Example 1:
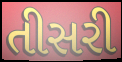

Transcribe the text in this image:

તીસરી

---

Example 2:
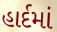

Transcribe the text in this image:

હાર્દમાં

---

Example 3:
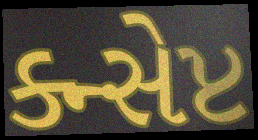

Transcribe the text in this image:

ક્ન્સેપ્ટ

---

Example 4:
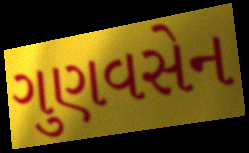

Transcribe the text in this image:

ગુણવસેન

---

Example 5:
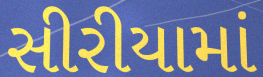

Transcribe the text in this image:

સીરીયામાં